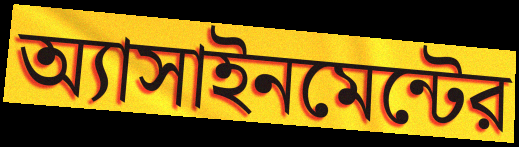
অ্যাসাইনমেন্টের